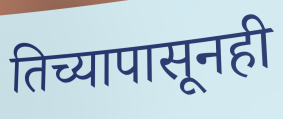
तिच्यापासूनही